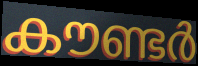
കൗണ്ടർ